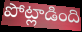
పోట్లాడింది